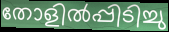
തോളിൽപ്പിടിച്ചു